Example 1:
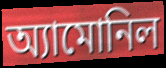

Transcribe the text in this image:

অ্যামোনিল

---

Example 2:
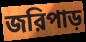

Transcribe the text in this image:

জরিপাড়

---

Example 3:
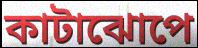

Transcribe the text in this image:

কাটাঝোপে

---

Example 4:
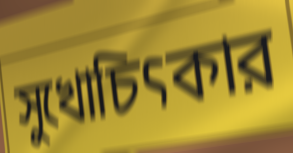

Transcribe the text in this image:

সুখোচিৎকার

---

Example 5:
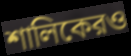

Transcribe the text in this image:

শালিকেরও